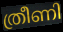
ത്രീണി